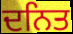
ਦਨਿਤ